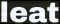
leat